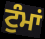
ਟੁੰਮਾਂ